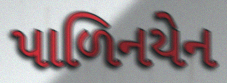
પાળિનયેન